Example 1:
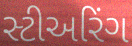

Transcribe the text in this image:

સ્ટીઅરિંગ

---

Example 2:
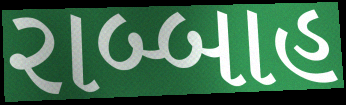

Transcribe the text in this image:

રાબ્બાહ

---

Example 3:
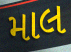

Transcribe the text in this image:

માલ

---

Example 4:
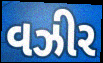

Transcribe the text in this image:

વઝીર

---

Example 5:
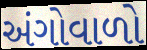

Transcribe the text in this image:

અંગોવાળો